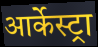
आर्केस्ट्रा